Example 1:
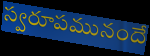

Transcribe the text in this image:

స్వరూపమునందే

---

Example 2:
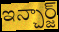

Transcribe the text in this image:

ఇన్చార్జ్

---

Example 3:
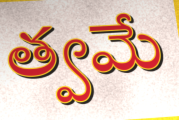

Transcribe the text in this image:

త్వమే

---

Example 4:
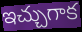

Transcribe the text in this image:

ఇచ్చుగాక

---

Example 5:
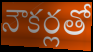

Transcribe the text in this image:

నౌకర్లతో